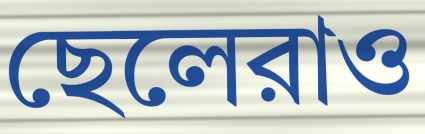
ছেলেরাও